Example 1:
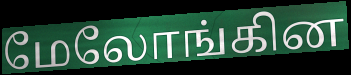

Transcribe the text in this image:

மேலோங்கின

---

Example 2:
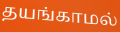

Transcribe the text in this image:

தயங்காமல்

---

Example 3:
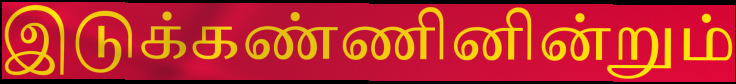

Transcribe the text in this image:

இடுக்கண்ணினின்றும்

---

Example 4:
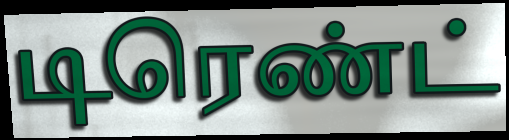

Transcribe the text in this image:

டிரெண்ட்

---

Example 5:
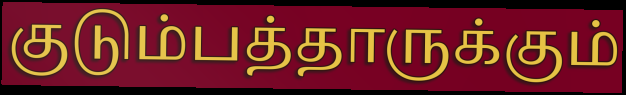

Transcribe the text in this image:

குடும்பத்தாருக்கும்